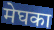
मेघका